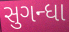
સુગન્ધા